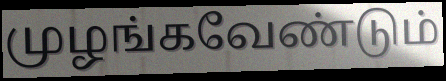
முழங்கவேண்டும்